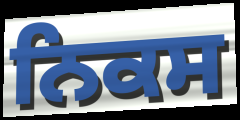
ਨਿਕਸ